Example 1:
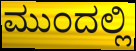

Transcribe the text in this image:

ಮುಂದಲ್ಲಿ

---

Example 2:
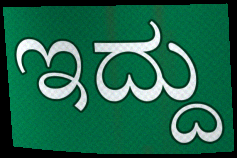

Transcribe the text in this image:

ಇದ್ದು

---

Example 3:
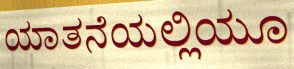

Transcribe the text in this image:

ಯಾತನೆಯಲ್ಲಿಯೂ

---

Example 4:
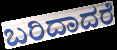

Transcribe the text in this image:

ಬರಿದಾದರೆ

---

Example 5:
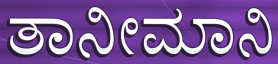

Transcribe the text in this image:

ತಾನೀಮಾನಿ